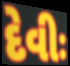
દેવીઃ